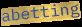
abetting